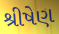
શ્રીષેણ